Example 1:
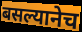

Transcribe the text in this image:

बसल्यानेच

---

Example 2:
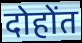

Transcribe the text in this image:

दोहोंत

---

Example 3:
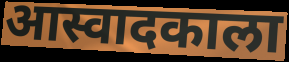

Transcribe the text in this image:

आस्वादकाला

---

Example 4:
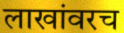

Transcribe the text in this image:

लाखांवरच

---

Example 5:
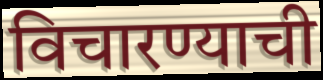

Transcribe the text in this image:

विचारण्याची